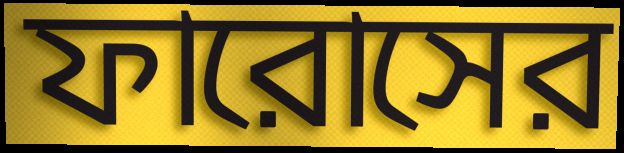
ফারোসের